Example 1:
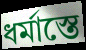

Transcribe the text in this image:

ধর্মাস্তে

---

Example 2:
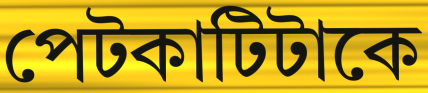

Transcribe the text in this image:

পেটকাটিটাকে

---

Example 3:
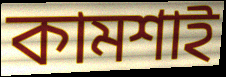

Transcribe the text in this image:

কামশাই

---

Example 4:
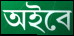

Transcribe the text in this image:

অইবে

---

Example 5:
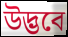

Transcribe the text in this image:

উদ্ভবে